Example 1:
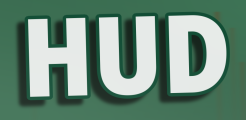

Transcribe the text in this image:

HUD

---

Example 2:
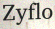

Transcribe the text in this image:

Zyflo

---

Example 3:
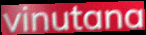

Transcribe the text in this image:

vinutana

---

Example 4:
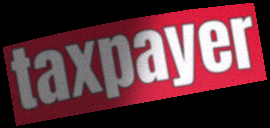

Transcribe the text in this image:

taxpayer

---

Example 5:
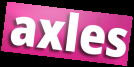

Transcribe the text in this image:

axles